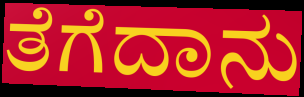
ತೆಗೆದಾನು